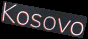
Kosovo